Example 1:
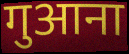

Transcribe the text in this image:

गुआना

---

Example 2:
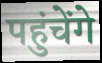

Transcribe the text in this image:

पहुंचेंगे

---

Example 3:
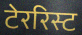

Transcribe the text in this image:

टेररिस्ट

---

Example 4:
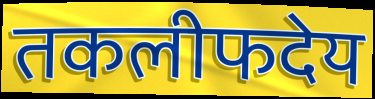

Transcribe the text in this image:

तकलीफदेय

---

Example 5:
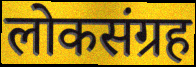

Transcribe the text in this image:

लोकसंग्रह